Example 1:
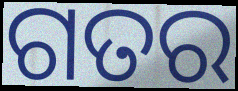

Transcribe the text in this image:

ଗତର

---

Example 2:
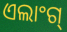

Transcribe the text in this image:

ଏଲାଂଗ୍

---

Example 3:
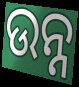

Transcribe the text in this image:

ଉନ୍ନ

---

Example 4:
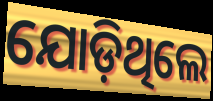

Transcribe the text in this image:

ଯୋଡ଼ିଥିଲେ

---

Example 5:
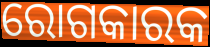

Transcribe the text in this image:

ରୋଗକାରକ